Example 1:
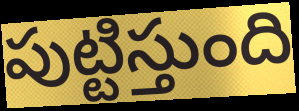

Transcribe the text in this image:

పుట్టిస్తుంది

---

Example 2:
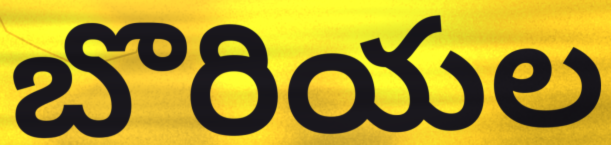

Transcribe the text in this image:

బొరియల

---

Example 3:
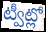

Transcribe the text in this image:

ట్వీట్లో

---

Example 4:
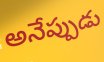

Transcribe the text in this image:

అనేప్పుడు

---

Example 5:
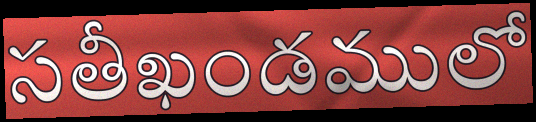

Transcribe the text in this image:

సతీఖండములో